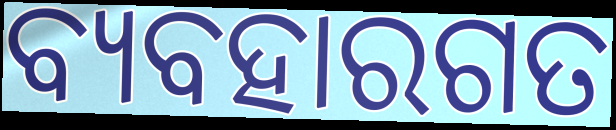
ବ୍ୟବହାରଗତ